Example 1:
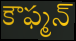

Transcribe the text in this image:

కౌఫ్మన్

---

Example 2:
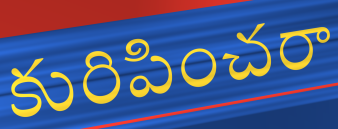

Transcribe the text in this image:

కురిపించరా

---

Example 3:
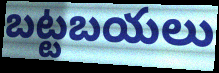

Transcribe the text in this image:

బట్టబయలు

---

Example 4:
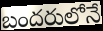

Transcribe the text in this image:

బందరులోనే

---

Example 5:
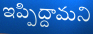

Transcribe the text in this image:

ఇప్పిద్దామని